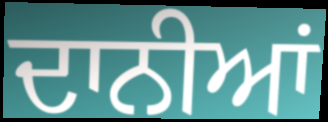
ਦਾਨੀਆਂ